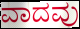
ವಾದವು